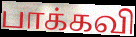
பாக்கவி